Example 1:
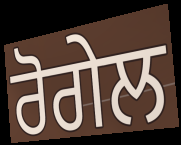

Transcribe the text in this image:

ਰੋਗੇਲ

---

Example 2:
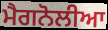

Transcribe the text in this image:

ਮੈਗਨੋਲੀਆ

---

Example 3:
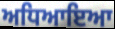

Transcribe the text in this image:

ਅਧਿਆਇਆ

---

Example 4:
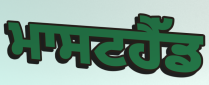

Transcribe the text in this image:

ਮਾਸਟਹੈੱਡ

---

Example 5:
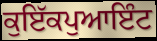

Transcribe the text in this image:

ਕੁਇੱਕਪੁਆਇੰਟ